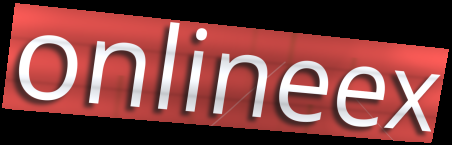
onlineex